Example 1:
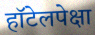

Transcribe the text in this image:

हॉटेलपेक्षा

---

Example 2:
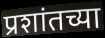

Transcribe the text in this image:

प्रशांतच्या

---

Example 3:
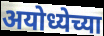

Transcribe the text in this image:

अयोध्येच्या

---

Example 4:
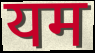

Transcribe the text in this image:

यम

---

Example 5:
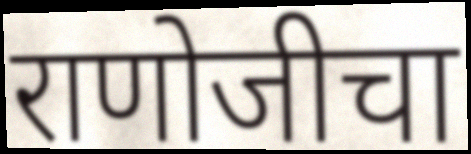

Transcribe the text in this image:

राणोजीचा